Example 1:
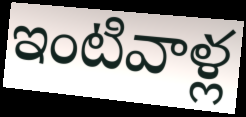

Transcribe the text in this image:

ఇంటివాళ్ల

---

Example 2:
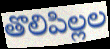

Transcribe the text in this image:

తొలిపిల్లల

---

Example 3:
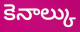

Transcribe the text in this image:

కెనాల్కు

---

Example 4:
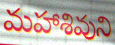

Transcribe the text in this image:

మహాశివుని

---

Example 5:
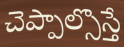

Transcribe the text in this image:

చెప్పాల్సొస్తే